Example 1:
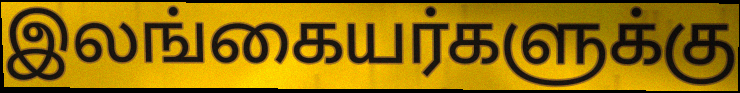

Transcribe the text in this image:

இலங்கையர்களுக்கு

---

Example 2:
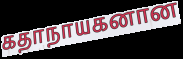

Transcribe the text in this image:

கதாநாயகனான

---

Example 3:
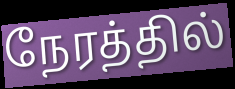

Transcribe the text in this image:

நேரத்தில்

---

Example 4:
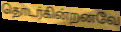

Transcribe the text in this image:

தொடர்கின்றனவே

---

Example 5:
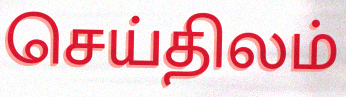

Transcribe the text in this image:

செய்திலம்